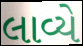
લાવ્યે